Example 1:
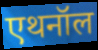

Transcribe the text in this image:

एथनॉल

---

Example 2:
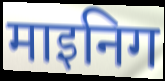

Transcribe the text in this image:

माइनिग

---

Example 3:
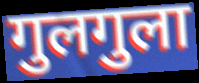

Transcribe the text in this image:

गुलगुला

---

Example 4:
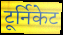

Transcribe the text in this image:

टूर्निकेट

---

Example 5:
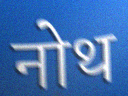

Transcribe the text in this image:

नोथ